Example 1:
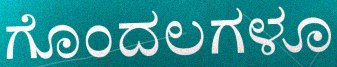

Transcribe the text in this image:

ಗೊಂದಲಗಳೂ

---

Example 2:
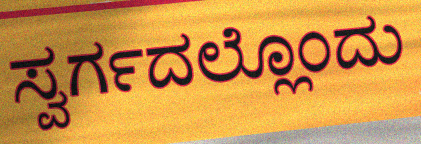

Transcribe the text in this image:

ಸ್ವರ್ಗದಲ್ಲೊಂದು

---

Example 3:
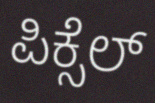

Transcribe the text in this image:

ಪಿಕ್ಸೆಲ್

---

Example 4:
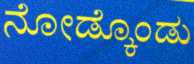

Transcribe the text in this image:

ನೋಡ್ಕೊಂಡು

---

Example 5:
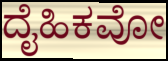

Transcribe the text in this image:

ದೈಹಿಕವೋ